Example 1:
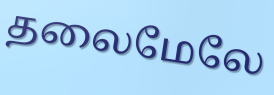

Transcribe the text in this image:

தலைமேலே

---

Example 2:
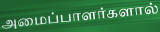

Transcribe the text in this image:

அமைப்பாளர்களால்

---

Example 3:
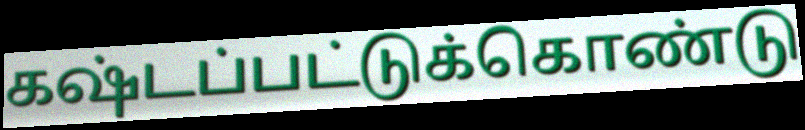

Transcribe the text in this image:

கஷ்டப்பட்டுக்கொண்டு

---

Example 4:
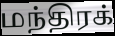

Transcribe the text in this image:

மந்திரக்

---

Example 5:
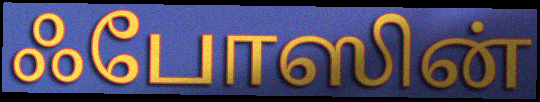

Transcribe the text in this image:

ஃபோஸின்